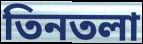
তিনতলা